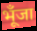
भूँजा